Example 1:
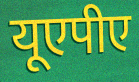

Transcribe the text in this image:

यूएपीए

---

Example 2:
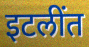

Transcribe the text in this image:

इटलींत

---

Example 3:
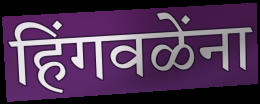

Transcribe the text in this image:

हिंगवळेंना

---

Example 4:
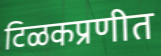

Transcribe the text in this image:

टिळकप्रणीत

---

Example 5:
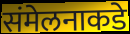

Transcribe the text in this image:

संमेलनाकडे